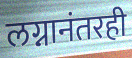
लग्नानंतरही